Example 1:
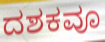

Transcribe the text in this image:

ದಶಕವೂ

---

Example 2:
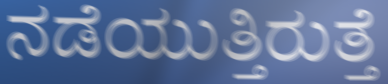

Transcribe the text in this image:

ನಡೆಯುತ್ತಿರುತ್ತೆ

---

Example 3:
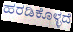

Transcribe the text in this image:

ಹರಡಿಕೊಳ್ಳದೆ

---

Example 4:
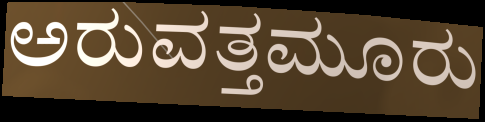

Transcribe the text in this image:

ಅರುವತ್ತಮೂರು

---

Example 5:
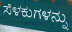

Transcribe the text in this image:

ಸೆಳಕುಗಳನ್ನು